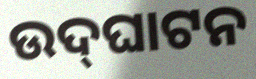
ଉଦ୍‌ଘାଟନ